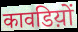
कावडिय़ों